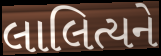
લાલિત્યને